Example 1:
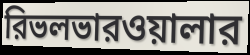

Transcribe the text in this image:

রিভলভারওয়ালার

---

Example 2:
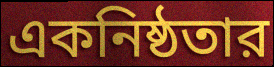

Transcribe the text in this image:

একনিষ্ঠতার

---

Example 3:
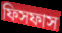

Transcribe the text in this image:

ফিসফাস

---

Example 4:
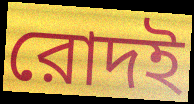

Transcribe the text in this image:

রোদই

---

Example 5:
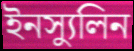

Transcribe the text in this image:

ইনস্যুলিন